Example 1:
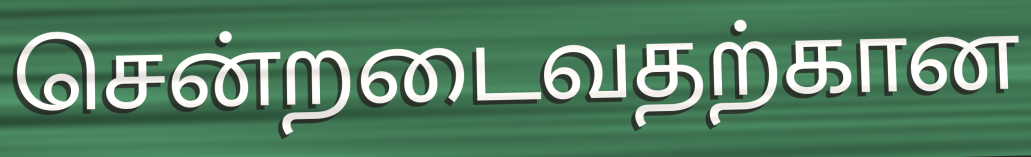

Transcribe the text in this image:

சென்றடைவதற்கான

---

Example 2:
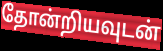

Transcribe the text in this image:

தோன்றியவுடன்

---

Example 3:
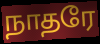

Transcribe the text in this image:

நாதரே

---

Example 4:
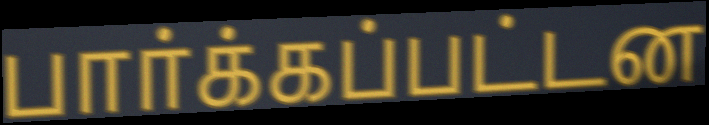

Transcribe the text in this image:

பார்க்கப்பட்டன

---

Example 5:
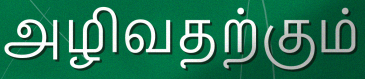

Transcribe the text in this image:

அழிவதற்கும்